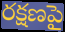
రక్షణపై